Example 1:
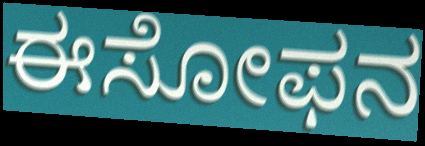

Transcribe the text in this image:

ಈಸೋಫನ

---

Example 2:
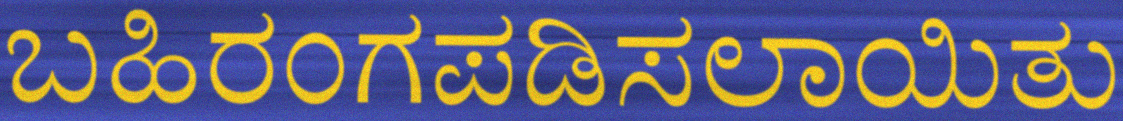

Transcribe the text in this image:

ಬಹಿರಂಗಪಡಿಸಲಾಯಿತು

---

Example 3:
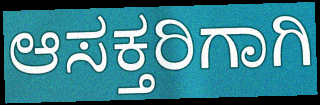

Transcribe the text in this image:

ಆಸಕ್ತರಿಗಾಗಿ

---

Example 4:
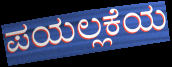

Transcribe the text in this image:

ಪಯಲ್ಲಕೆಯ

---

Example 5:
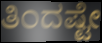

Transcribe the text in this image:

ತಿಂದಷ್ಟೇ